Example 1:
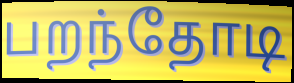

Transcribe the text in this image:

பறந்தோடி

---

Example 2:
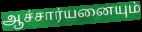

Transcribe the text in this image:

ஆச்சார்யனையும்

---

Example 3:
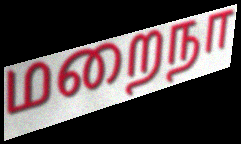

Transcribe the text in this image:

மறைநா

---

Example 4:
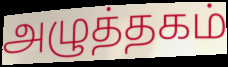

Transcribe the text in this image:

அழுத்தகம்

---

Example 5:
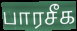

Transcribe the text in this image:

பாரசீக